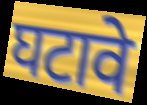
घटावे